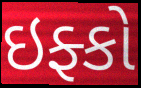
ઇફ્કો